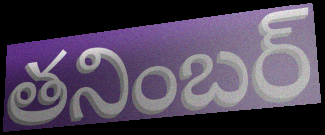
తనింబర్